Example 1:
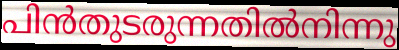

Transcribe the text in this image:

പിൻതുടരുന്നതിൽനിന്നു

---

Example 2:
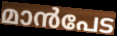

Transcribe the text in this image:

മാൻപേട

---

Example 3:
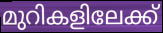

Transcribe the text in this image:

മുറികളിലേക്ക്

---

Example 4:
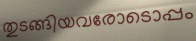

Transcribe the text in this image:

തുടങ്ങിയവരോടൊപ്പം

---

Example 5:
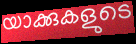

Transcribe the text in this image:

യാക്കുകളുടെ